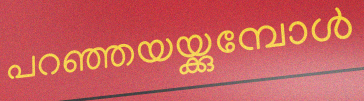
പറഞ്ഞയയ്ക്കുമ്പോൾ